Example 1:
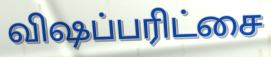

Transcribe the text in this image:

விஷப்பரிட்சை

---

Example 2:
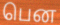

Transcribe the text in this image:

பென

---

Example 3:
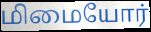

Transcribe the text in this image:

மிமையோர்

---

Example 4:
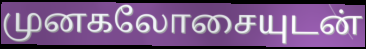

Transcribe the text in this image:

முனகலோசையுடன்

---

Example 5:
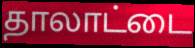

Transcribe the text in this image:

தாலாட்டை